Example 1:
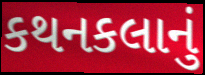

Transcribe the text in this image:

કથનકલાનું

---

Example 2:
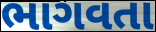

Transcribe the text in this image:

ભાગવતા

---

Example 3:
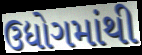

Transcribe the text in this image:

ઉદ્યોગમાંથી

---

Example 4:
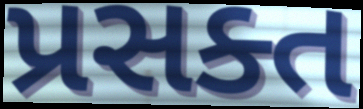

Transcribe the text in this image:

પ્રસક્ત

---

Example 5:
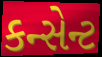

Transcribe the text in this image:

કન્સેન્ટ